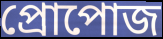
প্রোপোজ